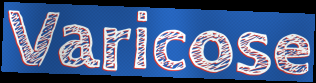
Varicose